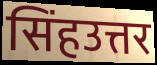
सिंहउत्तर